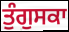
ਤੁੰਗੁਸਕਾ